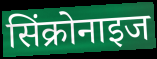
सिंक्रोनाइज